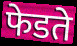
फेडते